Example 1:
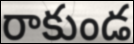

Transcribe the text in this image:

రాకుండ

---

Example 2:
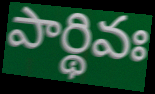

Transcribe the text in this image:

పార్థివః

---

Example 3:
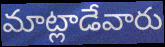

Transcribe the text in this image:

మాట్లాడేవారు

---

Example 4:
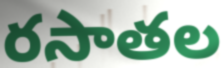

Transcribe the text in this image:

రసాతల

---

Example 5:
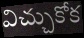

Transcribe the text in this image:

విచ్చుకోక